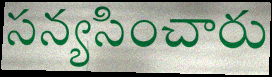
సన్యసించారు